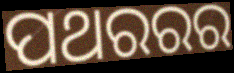
ପଥରରର